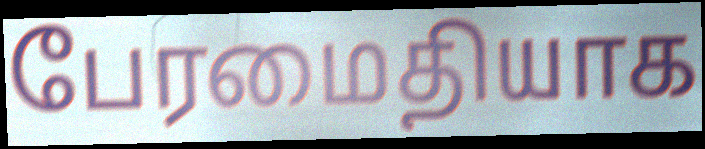
பேரமைதியாக